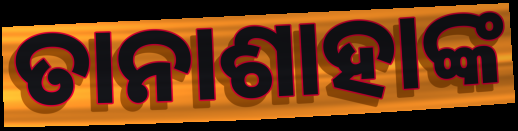
ତାନାଶାହାଙ୍କ